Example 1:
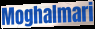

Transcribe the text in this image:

Moghalmari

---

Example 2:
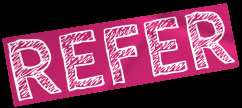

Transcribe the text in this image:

REFER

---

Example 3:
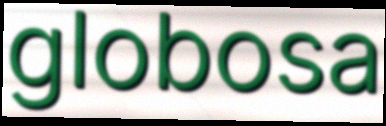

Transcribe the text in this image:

globosa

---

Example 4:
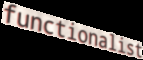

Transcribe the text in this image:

functionalist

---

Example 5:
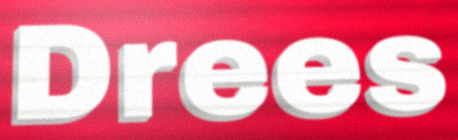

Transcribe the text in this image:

Drees